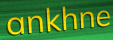
ankhne